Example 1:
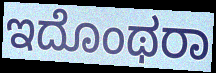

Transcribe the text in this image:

ಇದೊಂಥರಾ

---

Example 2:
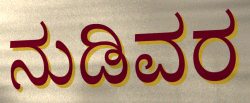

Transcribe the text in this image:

ನುಡಿವರ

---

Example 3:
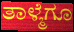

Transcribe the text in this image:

ತಾಳ್ಮೆಗೂ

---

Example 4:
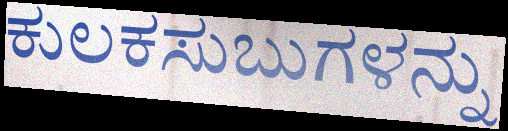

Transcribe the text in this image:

ಕುಲಕಸುಬುಗಳನ್ನು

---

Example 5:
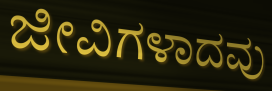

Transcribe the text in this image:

ಜೀವಿಗಳಾದವು